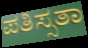
ಪತಿಸ್ಸತಾ